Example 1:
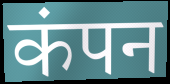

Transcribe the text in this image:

कंपन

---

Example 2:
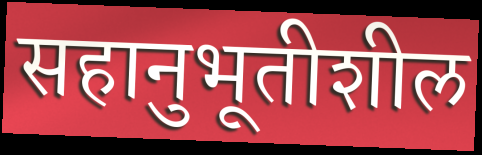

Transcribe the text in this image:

सहानुभूतीशील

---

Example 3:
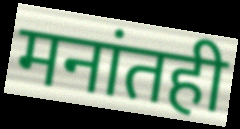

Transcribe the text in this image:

मनांतही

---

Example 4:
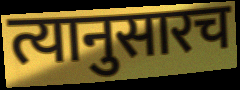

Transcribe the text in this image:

त्यानुसारच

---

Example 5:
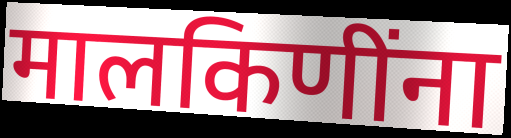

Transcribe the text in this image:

मालकिणींना